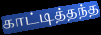
காட்டித்தந்த